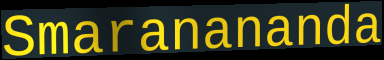
Smaranananda